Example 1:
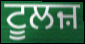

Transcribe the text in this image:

ਟੂਲਜ਼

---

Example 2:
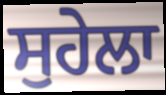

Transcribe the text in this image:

ਸੁਹੇਲਾ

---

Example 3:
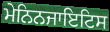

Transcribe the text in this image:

ਮੇਨਿਨਜਾਇਟਿਸ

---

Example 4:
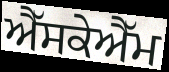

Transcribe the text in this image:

ਐੱਸਕੇਐੱਮ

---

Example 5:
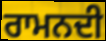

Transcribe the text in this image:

ਰਾਮਨਦੀ